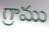
గ్రాము